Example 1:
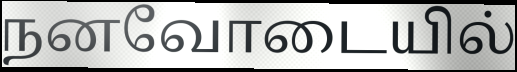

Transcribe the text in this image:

நனவோடையில்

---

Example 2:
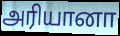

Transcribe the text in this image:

அரியானா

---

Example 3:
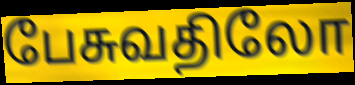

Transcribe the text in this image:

பேசுவதிலோ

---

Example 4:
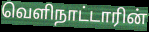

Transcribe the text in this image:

வெளிநாட்டாரின்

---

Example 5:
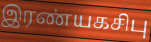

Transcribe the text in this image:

இரண்யகசிபு